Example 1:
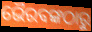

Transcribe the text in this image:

ଭୈରବଙ୍କଠାରୁ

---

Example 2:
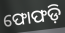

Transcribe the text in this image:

ଫୋଫଡ଼ି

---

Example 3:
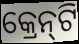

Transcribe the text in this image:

କ୍ରେନ୍‍ଟି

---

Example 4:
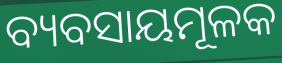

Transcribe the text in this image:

ବ୍ୟବସାୟମୂଳକ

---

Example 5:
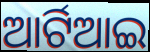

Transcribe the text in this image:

ଆର୍ଟିଆଇ